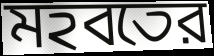
মহবতের